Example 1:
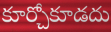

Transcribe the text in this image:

కూర్చోకూడదు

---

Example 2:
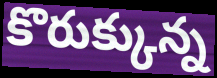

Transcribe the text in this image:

కొరుక్కున్న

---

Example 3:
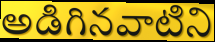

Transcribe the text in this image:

అడిగినవాటిని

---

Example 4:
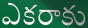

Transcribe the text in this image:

ఎకరాకు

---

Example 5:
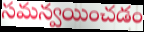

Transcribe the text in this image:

సమన్వయించడం